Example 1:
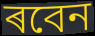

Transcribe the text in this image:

ৰবেন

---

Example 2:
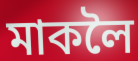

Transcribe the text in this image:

মাকলৈ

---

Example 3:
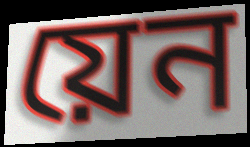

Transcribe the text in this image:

য়েন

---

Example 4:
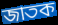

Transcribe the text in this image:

জাতক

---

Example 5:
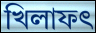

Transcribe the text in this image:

খিলাফৎ